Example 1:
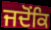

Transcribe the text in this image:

ਜਦੋਂਕਿ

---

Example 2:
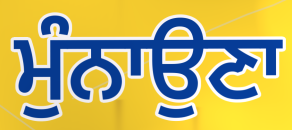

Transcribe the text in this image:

ਮੁੰਨਾਉਣਾ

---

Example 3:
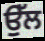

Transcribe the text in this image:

ਉੱਲ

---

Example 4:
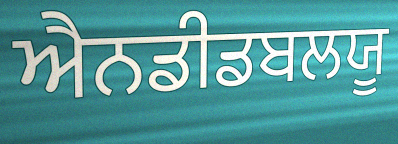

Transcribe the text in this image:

ਐਨਡੀਡਬਲਯੂ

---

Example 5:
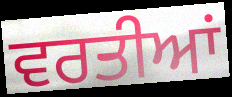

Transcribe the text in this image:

ਵਰਤੀਆਂ